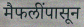
मैफलींपासून